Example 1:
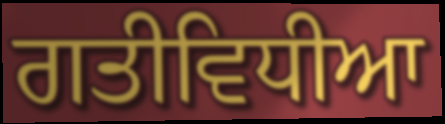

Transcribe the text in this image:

ਗਤੀਵਿਧੀਆ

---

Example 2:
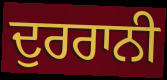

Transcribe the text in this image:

ਦੁਰਰਾਨੀ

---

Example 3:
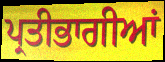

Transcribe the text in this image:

ਪ੍ਰਤੀਭਾਗੀਆਂ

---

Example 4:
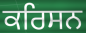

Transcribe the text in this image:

ਕਰਿਸਨ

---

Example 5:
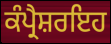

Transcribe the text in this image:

ਕੰਪ੍ਰੈਸ਼ਰਇਹ